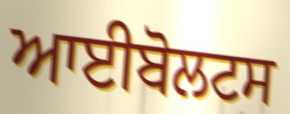
ਆਈਬੋਲਟਸ